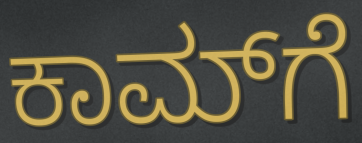
ಕಾಮ್‌ಗೆ